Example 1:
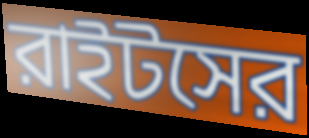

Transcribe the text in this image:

রাইটসের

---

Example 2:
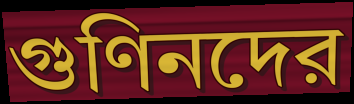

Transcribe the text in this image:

গুণিনদের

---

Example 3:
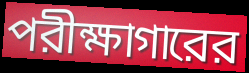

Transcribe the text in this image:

পরীক্ষাগারের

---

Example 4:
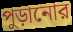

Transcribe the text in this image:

পুড়ানোর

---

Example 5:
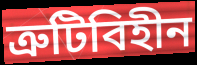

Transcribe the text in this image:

ত্রুটিবিহীন